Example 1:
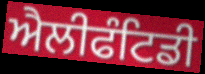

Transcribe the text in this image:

ਐਲੀਫੰਟਿਡੀ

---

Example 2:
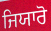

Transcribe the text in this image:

ਜਿਯਾਰੋ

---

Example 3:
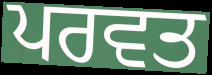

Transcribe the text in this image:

ਪਰਵਤ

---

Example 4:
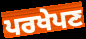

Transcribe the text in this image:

ਪਰਖੇਪਣ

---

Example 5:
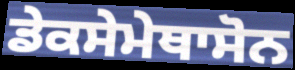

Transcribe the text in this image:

ਡੇਕਸੇਮੇਥਾਸੋਨ